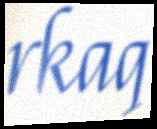
rkaq